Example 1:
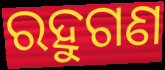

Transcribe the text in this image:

ରହୁଗଣ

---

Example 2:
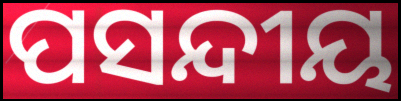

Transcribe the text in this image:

ପସନ୍ଦୀୟ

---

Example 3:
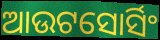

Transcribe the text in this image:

ଆଉଟସୋର୍ସିଂ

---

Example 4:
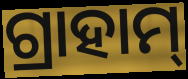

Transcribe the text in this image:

ଗ୍ରାହାମ୍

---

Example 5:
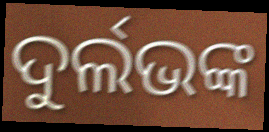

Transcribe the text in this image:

ଦୁର୍ଲଭଙ୍କ